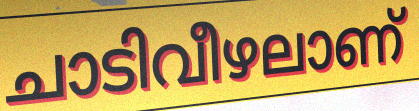
ചാടിവീഴലാണ്